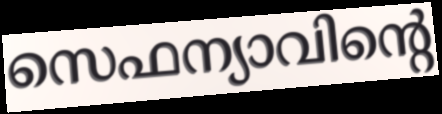
സെഫന്യാവിന്റെ